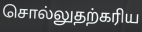
சொல்லுதற்கரிய